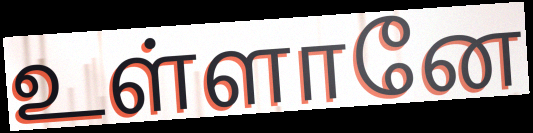
உள்ளானே